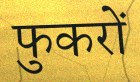
फुकरों